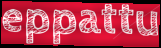
eppattu